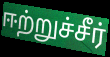
ஈற்றுச்சீர்